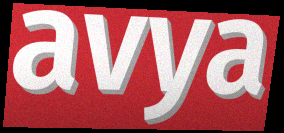
avya